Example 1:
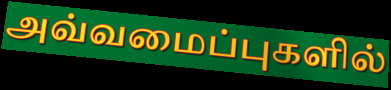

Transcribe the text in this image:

அவ்வமைப்புகளில்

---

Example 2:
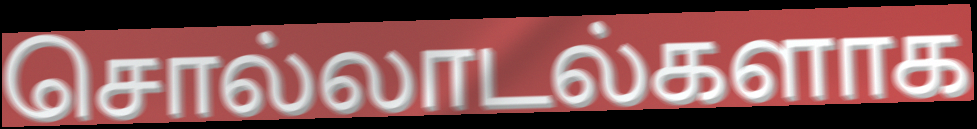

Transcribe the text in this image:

சொல்லாடல்களாக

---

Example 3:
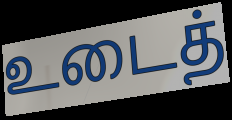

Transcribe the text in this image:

உடைத்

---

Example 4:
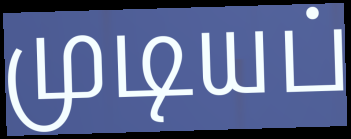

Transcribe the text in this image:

முடியப்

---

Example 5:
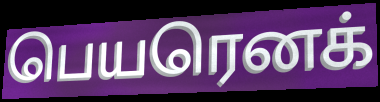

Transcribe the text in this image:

பெயரெனக்